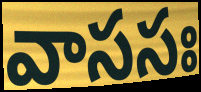
వాససః